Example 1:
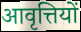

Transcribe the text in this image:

आवृत्तियों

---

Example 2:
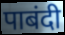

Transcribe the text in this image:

पाबंदी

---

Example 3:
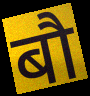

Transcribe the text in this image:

बौ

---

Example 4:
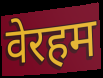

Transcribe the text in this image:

वेरहम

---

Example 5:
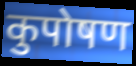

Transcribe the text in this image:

कुपोषण